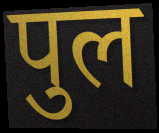
पुल